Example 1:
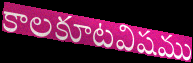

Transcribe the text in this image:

కాలకూటవిషము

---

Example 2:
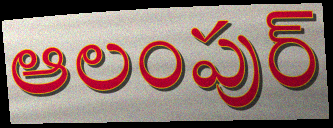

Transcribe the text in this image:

ఆలంపుర్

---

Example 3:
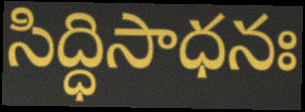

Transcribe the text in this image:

సిద్ధిసాధనః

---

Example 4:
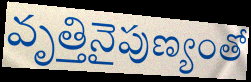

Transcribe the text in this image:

వృత్తినైపుణ్యంతో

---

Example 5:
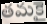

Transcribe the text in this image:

తమకై